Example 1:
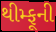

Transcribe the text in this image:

થીમ્ફૂની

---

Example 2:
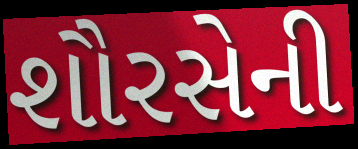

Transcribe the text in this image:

શૌરસેની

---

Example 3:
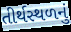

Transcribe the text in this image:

તીર્થસ્થળનું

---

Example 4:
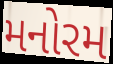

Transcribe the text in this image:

મનોરમ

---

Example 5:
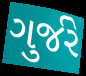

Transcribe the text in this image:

ગુર્જરે